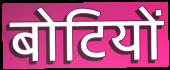
बोटियों